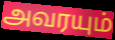
அவரயும்